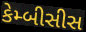
કેમ્બીસીસ